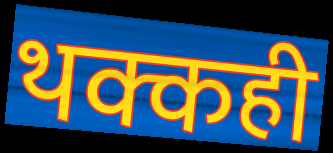
थक्कही